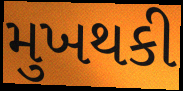
મુખથકી